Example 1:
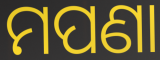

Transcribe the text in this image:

ମପଣା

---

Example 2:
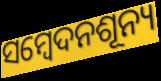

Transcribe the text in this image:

ସମ୍ବେଦନଶୂନ୍ୟ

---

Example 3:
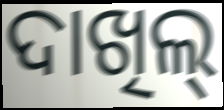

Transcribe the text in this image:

ଦାଖିଲ୍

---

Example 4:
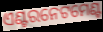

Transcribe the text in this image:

ଏଣ୍ଟରନେଟମେଣ୍ଟ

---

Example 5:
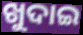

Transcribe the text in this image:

ଖୁଦାଇ